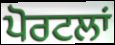
ਪੋਰਟਲਾਂ